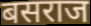
बसराज